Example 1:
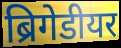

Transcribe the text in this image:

ब्रिगेडीयर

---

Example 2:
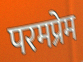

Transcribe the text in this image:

परमप्रेम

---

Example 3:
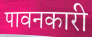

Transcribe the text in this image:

पावनकारी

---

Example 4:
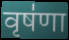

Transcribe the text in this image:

वृष॑णा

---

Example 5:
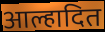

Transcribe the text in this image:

आल्हादित